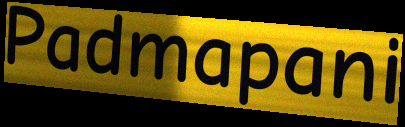
Padmapani